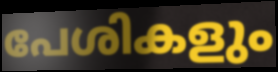
പേശികളും